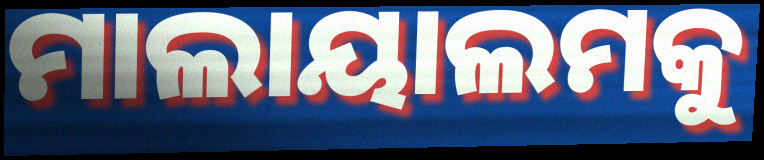
ମାଲାୟାଲମକୁ